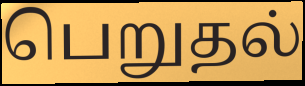
பெறுதல்